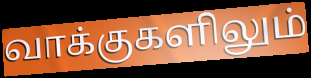
வாக்குகளிலும்